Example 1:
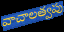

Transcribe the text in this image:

వాచాలత్వపు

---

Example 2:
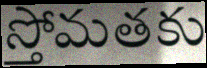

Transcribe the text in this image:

స్తోమతకు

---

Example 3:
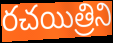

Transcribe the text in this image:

రచయిత్రిని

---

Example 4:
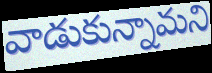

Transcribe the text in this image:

వాడుకున్నామని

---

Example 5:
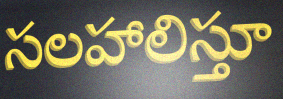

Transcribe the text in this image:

సలహాలిస్తూ